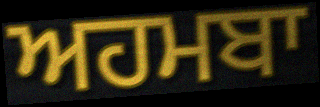
ਅਹਮਬਾ